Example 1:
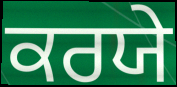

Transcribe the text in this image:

ਕਰਯੇ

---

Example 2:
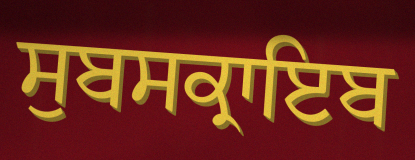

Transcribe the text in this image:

ਸੁਬਸਕ੍ਰਾਇਬ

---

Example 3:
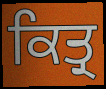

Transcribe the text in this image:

ਕਿਤ੍ਰ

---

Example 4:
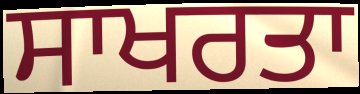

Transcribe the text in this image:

ਸਾਖਰਤਾ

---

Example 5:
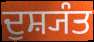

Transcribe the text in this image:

ਦੁਸ਼੍ਯੰਤ